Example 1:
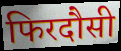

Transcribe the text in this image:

फिरदौसी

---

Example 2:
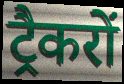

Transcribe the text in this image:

ट्रैकरों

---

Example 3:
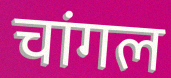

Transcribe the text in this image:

चांगल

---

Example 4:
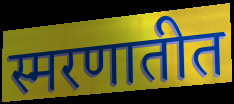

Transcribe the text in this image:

स्मरणातीत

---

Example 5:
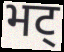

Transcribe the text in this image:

भट्